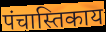
पंचास्तिकाय